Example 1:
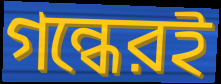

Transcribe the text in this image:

গন্ধেরই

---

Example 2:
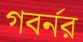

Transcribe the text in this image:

গবর্নর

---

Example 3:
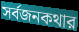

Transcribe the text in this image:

সর্বজনকথার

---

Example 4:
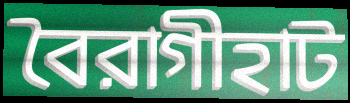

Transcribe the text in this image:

বৈরাগীহাট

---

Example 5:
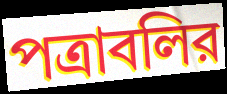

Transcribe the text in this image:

পত্রাবলির